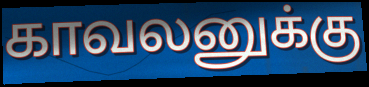
காவலனுக்கு